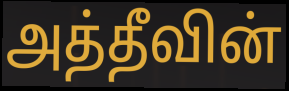
அத்தீவின்